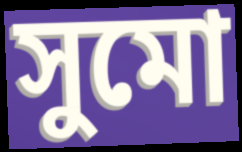
সুমো